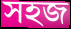
সহজ